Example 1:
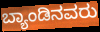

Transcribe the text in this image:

ಬ್ಯಾಂಡಿನವರು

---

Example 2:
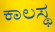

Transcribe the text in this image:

ಕಾಲಸ್ಥ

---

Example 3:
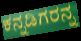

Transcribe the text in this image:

ಕನ್ನಡಿಗರನ್ನ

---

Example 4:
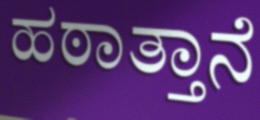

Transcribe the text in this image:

ಹಠಾತ್ತಾನೆ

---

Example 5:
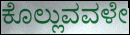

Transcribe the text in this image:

ಕೊಲ್ಲುವವಳೇ